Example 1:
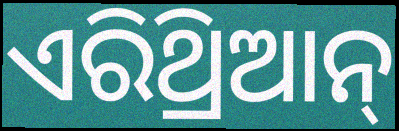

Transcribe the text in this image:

ଏରିଥ୍ରିଆନ୍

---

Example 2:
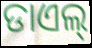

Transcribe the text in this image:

ଡାଏଲ୍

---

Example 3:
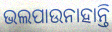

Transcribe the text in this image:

ଭଲପାଉନାହାନ୍ତି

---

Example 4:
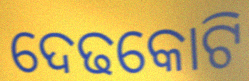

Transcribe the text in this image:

ଦେଢକୋଟି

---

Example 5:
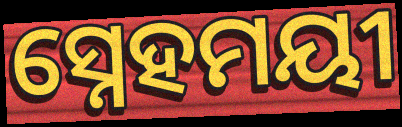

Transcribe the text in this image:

ସ୍ନେହମୟୀ